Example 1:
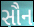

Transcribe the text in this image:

સૌન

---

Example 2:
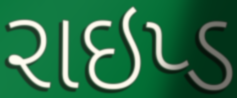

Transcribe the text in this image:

રાઇપ્ડ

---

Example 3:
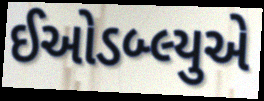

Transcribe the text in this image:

ઈઓડબ્લ્યુએ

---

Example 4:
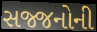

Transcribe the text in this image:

સજ્જનોની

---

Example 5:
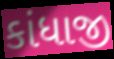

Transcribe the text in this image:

કાંધાજી